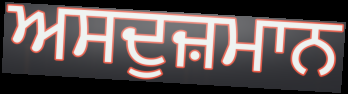
ਅਸਦੁਜ਼ਮਾਨ